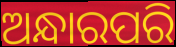
ଅନ୍ଧାରପରି